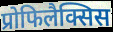
प्रोफिलैक्सिस